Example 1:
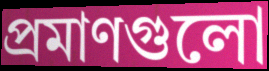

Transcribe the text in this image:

প্রমাণগুলো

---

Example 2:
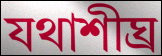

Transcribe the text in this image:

যথাশীঘ্র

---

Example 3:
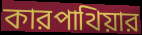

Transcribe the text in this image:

কারপাথিয়ার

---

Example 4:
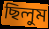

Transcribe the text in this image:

ছিলুম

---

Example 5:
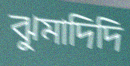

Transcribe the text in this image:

ঝুমাদিদি